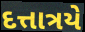
દત્તાત્રયે